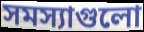
সমস্যাগুলো